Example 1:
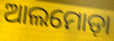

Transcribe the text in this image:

ଆଲମୋଡ଼ା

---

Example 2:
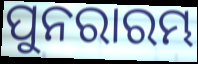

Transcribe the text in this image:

ପୁନରାରମ୍ଭ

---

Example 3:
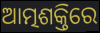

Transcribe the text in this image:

ଆତ୍ମଶକ୍ତିରେ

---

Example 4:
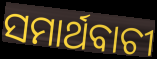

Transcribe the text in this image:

ସମାର୍ଥବାଚୀ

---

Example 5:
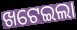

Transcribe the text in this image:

ଖଟେଇଲା